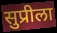
सुप्रीला